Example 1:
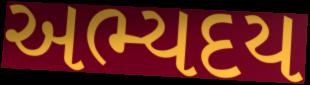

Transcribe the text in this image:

અભ્યદય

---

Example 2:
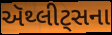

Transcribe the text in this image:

ઍથ્લીટ્સના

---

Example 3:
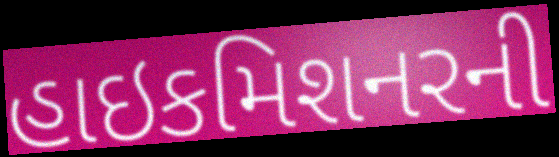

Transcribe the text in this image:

હાઇકમિશનરની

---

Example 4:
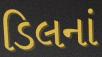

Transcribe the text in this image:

ડિલનાં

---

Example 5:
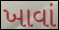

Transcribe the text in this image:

ખાવાં